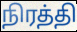
நிரத்தி